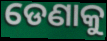
ଡେଣାକୁ